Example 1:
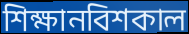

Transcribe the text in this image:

শিক্ষানবিশকাল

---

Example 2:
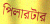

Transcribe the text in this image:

পিলারটার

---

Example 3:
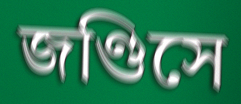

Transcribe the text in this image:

জণ্ডিসে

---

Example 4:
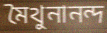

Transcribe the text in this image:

মৈথুনানন্দ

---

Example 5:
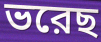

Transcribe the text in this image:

ভরেছ